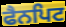
ਫੈਨਪਿਟ